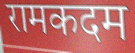
रामकदम